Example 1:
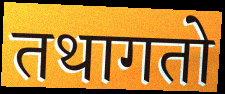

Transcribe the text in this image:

तथागतो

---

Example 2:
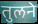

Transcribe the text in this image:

तुलने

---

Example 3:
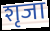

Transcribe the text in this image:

शृजा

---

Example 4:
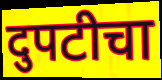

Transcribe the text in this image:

दुपटीचा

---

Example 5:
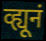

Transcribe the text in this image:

व्ह्यूनं